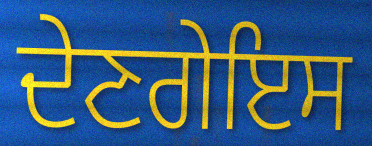
ਦੇਣਗੇਇਸ